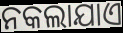
ନକଲାଯାଏ